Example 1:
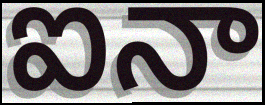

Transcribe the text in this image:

ఐనా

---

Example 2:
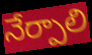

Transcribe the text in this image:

నేర్పాలి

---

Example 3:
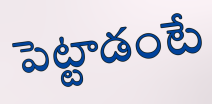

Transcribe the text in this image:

పెట్టాడంటే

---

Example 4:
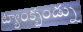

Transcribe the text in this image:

ట్యాంక్బండ్ను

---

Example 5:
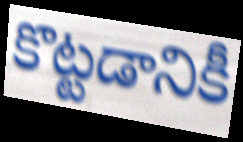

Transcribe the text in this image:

కొట్టడానికీ